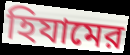
হিযামের